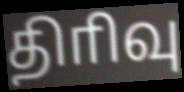
திரிவு